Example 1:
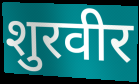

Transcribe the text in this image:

शुरवीर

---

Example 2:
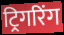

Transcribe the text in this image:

ट्रिगरिंग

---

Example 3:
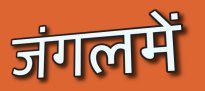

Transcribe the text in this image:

जंगलमें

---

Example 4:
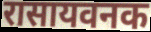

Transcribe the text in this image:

रासायवनक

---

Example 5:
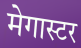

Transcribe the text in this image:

मेगास्टर